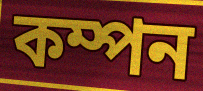
কম্পন